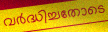
വർദ്ധിച്ചതോടെ